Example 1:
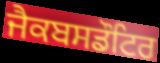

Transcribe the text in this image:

ਜੈਕਬਸਡੌਟਿਰ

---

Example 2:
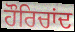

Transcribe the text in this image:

ਹੌਰਿਚਾਂਦ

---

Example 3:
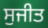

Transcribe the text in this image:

ਸੁਜੀਤ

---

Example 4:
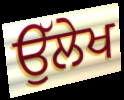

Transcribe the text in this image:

ਉੱਲੇਖ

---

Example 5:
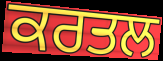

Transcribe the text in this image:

ਕਰਤਲ